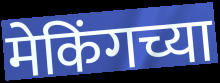
मेकिंगच्या